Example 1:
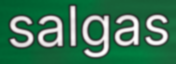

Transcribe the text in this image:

salgas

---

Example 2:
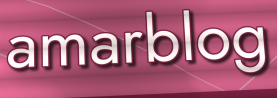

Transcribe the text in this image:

amarblog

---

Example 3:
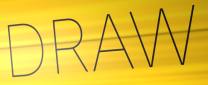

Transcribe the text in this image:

DRAW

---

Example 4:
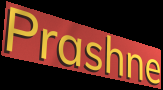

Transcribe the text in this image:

Prashne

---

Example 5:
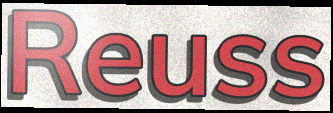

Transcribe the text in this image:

Reuss